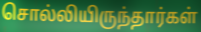
சொல்லியிருந்தார்கள்